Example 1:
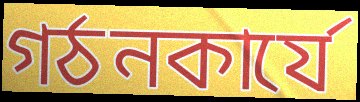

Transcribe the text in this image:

গঠনকার্যে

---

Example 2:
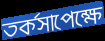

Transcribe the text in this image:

তর্কসাপেক্ষে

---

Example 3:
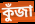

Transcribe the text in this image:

কুঁজা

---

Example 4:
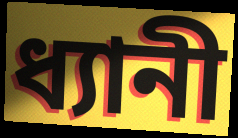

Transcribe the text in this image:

ধ্যানী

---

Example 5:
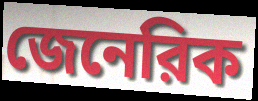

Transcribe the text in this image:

জেনেরিক